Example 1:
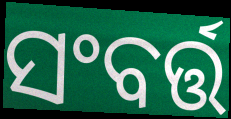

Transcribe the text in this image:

ସଂବର୍ତ୍ତ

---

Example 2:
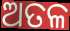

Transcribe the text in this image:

ଅତଳ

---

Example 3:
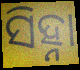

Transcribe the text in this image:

ସିହ୍ନା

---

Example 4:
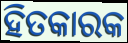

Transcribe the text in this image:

ହିତକାରକ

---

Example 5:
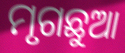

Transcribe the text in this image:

ମୃଗଛୁଆ